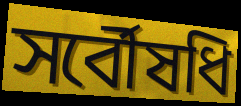
সর্বৌষধি